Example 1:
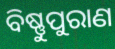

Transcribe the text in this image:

ବିଷ୍ଣୁପୁରାଣ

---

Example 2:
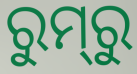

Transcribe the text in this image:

ରୁମ୍‌ରୁ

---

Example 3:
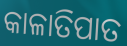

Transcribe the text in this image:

କାଳାତିପାତ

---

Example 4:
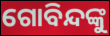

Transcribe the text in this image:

ଗୋବିନ୍ଦଙ୍କୁ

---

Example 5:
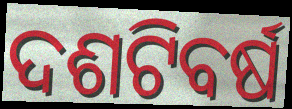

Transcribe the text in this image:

ଦଶଟିବର୍ଷ